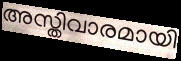
അസ്തിവാരമായി